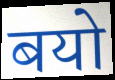
बयो